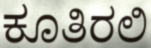
ಕೂತಿರಲಿ